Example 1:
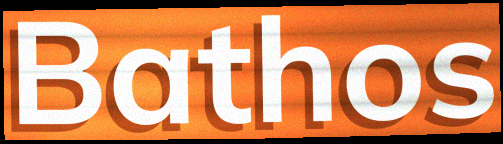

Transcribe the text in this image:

Bathos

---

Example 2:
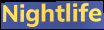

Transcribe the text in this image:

Nightlife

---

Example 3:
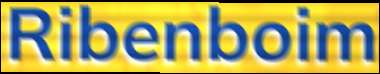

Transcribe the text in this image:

Ribenboim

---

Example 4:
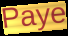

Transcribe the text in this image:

Paye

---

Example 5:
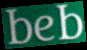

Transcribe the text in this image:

beb